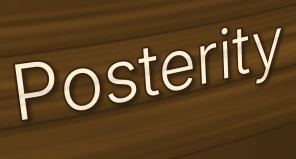
Posterity